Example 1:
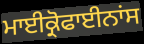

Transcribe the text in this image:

ਮਾਈਕ੍ਰੋਫਾਈਨਾਂਸ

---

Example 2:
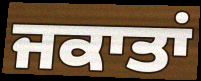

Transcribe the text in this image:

ਜਕਾਤਾਂ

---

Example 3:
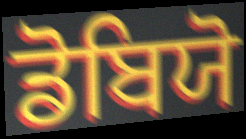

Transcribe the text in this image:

ਡੋਬਿਯੋ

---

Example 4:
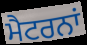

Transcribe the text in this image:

ਮੈਟਰਨਾਂ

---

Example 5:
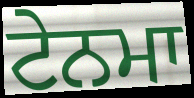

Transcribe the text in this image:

ਟੇਨਮਾ